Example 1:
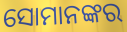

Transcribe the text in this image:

ସୋମାନଙ୍କର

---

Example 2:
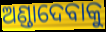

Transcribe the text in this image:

ଅଣ୍ଡାଦେବାକୁ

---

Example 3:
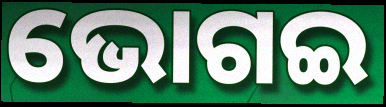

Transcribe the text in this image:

ଭୋଗଇ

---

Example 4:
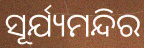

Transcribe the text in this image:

ସୂର୍ଯ୍ୟମନ୍ଦିର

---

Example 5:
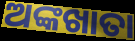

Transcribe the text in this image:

ଅଙ୍କଖାତା